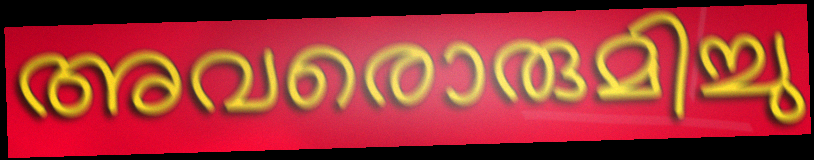
അവരൊരുമിച്ചു